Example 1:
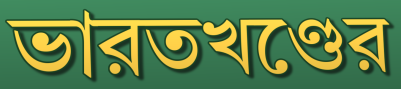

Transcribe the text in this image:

ভারতখণ্ডের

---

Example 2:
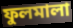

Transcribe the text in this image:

ফুলমালা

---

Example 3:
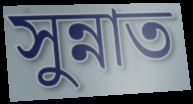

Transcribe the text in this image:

সুন্নাত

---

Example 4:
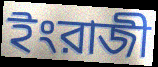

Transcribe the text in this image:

ইংরাজী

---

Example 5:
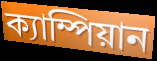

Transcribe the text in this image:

ক্যাম্পিয়ান